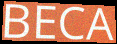
BECA